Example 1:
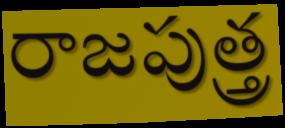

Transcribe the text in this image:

రాజపుత్త్ర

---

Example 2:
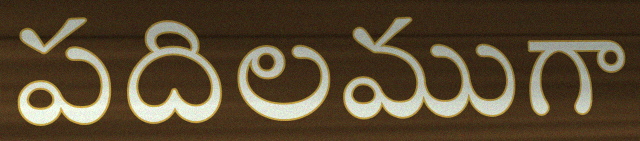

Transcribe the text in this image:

పదిలముగా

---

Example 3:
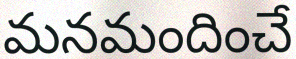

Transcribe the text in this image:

మనమందించే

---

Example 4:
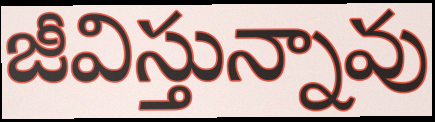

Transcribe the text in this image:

జీవిస్తున్నావు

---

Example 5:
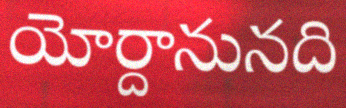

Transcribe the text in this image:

యోర్దానునది